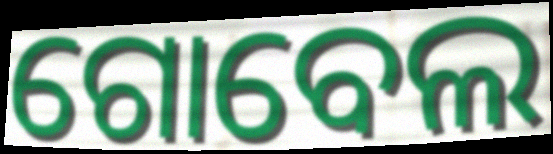
ଗୋବେଲ